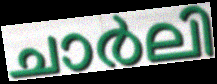
ചാർലി